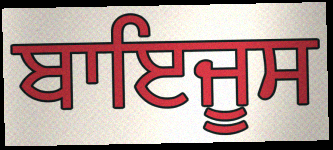
ਬਾਇਜੂਸ